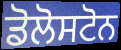
ਡੋਲੋਸਟੋਨ